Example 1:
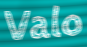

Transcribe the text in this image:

Valo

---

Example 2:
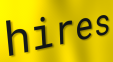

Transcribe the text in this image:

hires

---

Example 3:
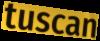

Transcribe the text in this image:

tuscan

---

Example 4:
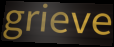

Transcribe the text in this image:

grieve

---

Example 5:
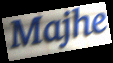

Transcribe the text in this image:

Majhe